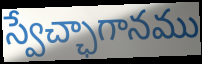
స్వేచ్ఛాగానము